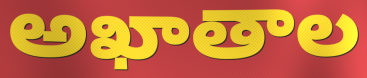
అఖాతాల